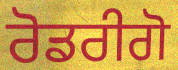
ਰੋਡਰੀਗੋ